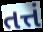
તત્તં